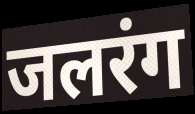
जलरंग